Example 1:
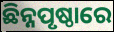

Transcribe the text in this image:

ଛିନ୍ନପୃଷ୍ଠାରେ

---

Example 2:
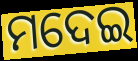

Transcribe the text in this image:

ମଦେଇ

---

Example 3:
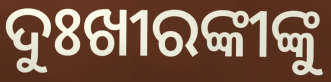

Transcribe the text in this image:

ଦୁଃଖୀରଙ୍କୀଙ୍କୁ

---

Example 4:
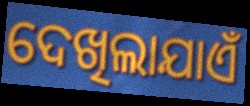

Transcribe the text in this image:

ଦେଖିଲାଯାଏଁ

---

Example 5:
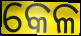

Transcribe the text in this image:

କେଳ